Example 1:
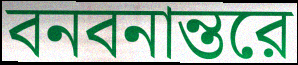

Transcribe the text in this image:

বনবনান্তরে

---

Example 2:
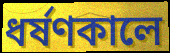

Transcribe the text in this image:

ধর্ষণকালে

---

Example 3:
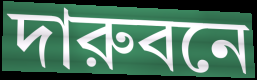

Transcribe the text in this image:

দারুবনে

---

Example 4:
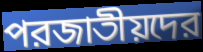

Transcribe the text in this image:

পরজাতীয়দের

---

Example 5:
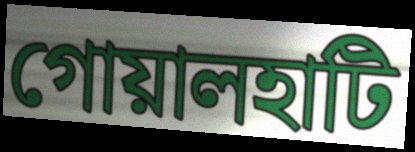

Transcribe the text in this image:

গোয়ালহাটি